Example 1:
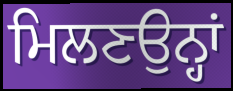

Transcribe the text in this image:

ਮਿਲਣਉਨ੍ਹਾਂ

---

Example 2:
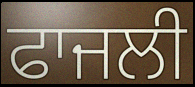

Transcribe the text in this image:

ਫਾਜਲੀ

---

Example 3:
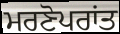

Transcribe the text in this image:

ਮਰਣੋਪਰਾਂਤ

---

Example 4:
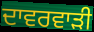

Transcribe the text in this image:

ਦਾਵਰਵਾੜੀ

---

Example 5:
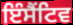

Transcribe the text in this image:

ਇੰਸੈਂਟਿਵ